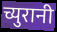
च्युरानी